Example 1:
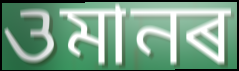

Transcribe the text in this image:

ওমানৰ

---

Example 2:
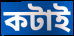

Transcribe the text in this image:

কটাই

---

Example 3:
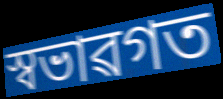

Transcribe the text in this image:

স্বভাৱগত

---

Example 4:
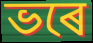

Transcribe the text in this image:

ভৰে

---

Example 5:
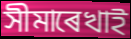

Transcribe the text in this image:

সীমাৰেখাই